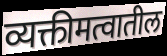
व्यक्तीमत्वातील